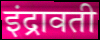
इंद्रावती